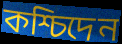
কশ্চিদেন